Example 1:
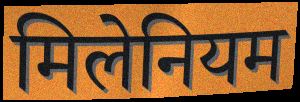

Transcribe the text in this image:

मिलेनियम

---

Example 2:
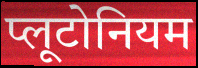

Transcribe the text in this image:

प्लूटोनियम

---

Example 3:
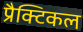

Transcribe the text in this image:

प्रैक्टिकल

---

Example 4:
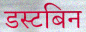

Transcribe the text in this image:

डस्टबिन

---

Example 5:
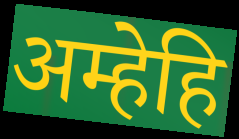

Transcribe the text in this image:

अम्हेहि